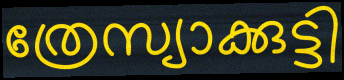
ത്രേസ്യാക്കുട്ടി